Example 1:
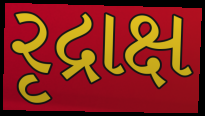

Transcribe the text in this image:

રૃદ્રાક્ષ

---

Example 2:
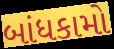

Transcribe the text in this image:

બાંધકામો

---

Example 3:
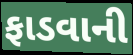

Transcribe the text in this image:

ફાડવાની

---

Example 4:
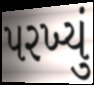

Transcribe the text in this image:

પરખ્યું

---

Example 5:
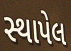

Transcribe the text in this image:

સ્થાપેલ